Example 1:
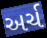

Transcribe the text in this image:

અર્ચ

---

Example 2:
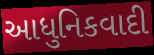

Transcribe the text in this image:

આધુનિકવાદી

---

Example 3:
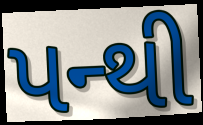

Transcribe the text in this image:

પન્થી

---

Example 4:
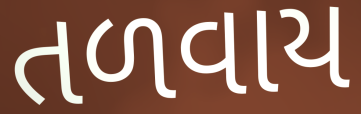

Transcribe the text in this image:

તળવાય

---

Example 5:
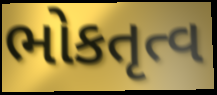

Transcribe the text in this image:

ભોકતૃત્વ